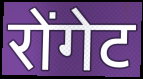
रोंगेट